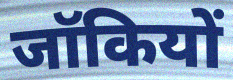
जॉकियों